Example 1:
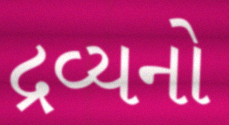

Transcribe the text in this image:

દ્રવ્યનો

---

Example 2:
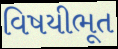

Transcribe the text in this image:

વિષયીભૂત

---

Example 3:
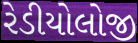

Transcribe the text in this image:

રેડીયોલોજી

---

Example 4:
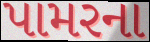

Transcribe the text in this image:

પામરના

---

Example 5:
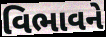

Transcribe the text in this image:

વિભાવને